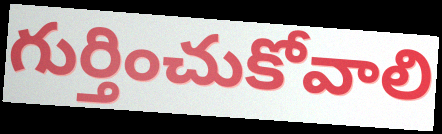
గుర్తించుకోవాలి